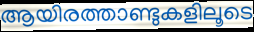
ആയിരത്താണ്ടുകളിലൂടെ